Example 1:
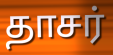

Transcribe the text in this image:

தாசர்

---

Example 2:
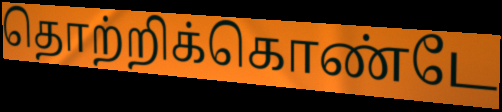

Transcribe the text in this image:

தொற்றிக்கொண்டே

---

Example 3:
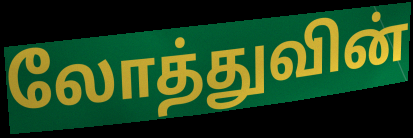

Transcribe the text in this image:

லோத்துவின்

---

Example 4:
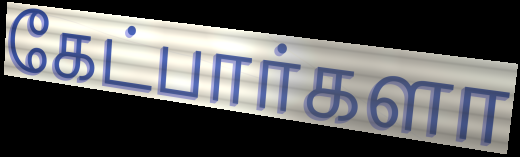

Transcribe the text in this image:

கேட்பார்களா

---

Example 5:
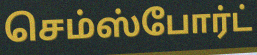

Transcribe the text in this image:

செம்ஸ்போர்ட்